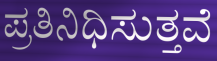
ಪ್ರತಿನಿಧಿಸುತ್ತವೆ